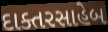
દાક્તરસાહેબ